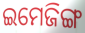
ଇମେଜିଙ୍ଗ